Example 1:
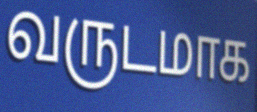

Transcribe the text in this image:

வருடமாக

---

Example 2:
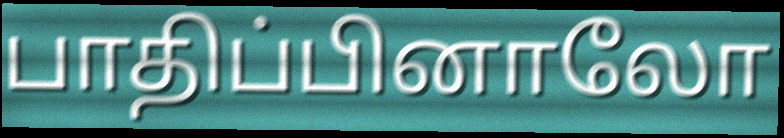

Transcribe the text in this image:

பாதிப்பினாலோ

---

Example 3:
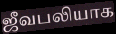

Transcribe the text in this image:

ஜீவபலியாக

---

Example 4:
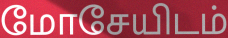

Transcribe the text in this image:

மோசேயிடம்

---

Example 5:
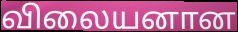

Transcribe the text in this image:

விலையனான